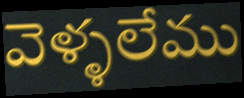
వెళ్ళలేము